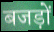
बजड़ों